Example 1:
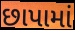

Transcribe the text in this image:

છાપામાં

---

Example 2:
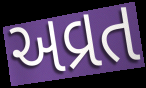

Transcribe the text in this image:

અવ્રત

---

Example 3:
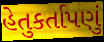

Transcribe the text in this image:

હેતુકર્તાપણું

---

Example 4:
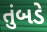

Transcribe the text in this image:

તુંબડે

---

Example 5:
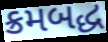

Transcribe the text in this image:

ક્રમબદ્ધ